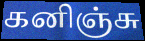
கனிஞ்சு